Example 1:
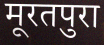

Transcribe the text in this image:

मूरतपुरा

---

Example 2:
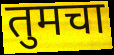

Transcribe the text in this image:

तुमचा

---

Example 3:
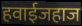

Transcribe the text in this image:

हवाईजहाज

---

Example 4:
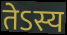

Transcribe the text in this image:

तेऽस्य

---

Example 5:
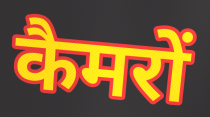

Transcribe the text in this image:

कैमरों